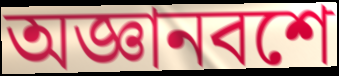
অজ্ঞানবশে